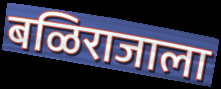
बळिराजाला